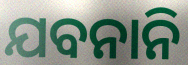
ଯବନାନି